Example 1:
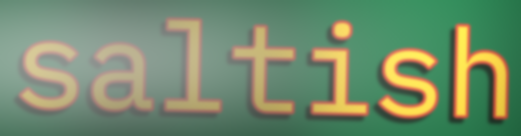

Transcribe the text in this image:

saltish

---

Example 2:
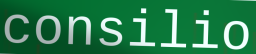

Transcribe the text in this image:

consilio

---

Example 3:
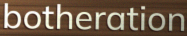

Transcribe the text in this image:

botheration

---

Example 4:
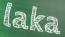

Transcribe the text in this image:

laka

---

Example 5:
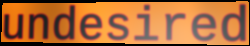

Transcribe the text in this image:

undesired